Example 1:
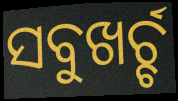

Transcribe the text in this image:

ସବୁଖର୍ଚ୍ଚ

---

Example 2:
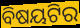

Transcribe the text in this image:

ବିଷୟଟିର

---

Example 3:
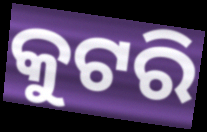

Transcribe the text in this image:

କୁଟରି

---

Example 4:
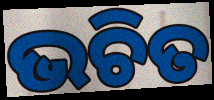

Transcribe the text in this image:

ଭଚିତ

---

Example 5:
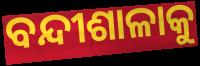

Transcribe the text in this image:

ବନ୍ଦୀଶାଳାକୁ